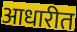
आधारीत